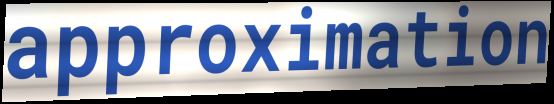
approximation